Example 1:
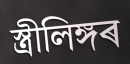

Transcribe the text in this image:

স্ত্ৰীলিঙ্গৰ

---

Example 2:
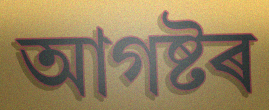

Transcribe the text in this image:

আগষ্টৰ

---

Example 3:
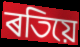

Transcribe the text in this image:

ৰতিয়ে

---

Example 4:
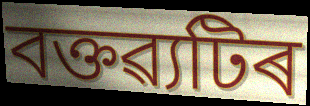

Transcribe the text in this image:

বক্তৱ্যটিৰ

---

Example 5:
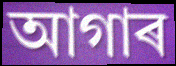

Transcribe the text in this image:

আগাৰ